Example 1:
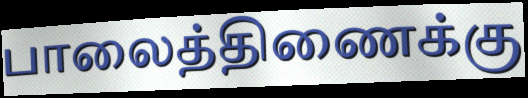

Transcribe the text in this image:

பாலைத்திணைக்கு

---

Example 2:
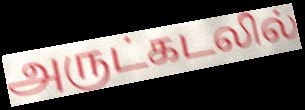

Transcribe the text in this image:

அருட்கடலில்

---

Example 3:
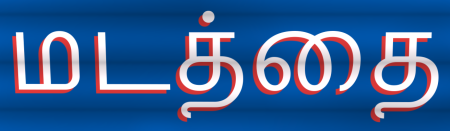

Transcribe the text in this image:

மடத்தை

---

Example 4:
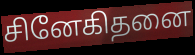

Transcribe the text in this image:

சினேகிதனை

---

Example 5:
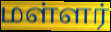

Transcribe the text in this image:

மள்ளர்